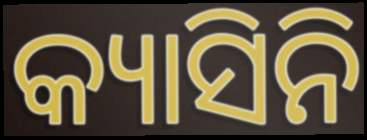
କ୍ୟାସିନି